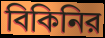
বিকিনির